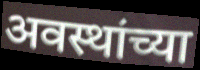
अवस्थांच्या